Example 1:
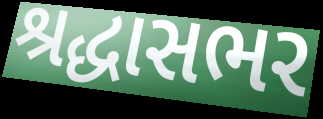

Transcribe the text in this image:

શ્રદ્ધાસભર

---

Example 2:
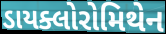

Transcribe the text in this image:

ડાયક્લોરોમિથેન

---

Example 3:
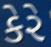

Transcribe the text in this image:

કેરે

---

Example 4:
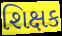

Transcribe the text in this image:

શિક્ષક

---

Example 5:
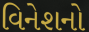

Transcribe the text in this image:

વિનેશનો